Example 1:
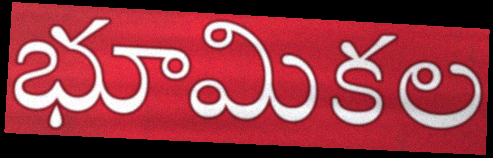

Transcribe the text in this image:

భూమికల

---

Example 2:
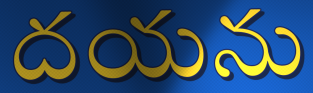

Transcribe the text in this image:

దయను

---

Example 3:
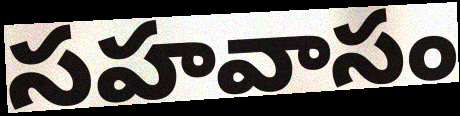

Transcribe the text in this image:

సహవాసం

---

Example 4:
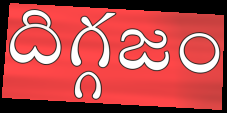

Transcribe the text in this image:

దిగ్గజం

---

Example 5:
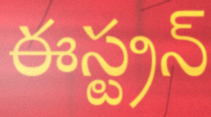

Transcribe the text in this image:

ఈస్ట్రన్